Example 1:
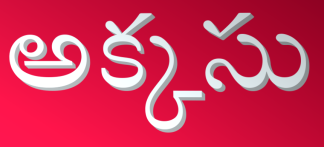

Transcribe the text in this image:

అక్కసు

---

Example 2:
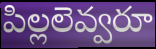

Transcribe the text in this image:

పిల్లలెవ్వరూ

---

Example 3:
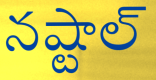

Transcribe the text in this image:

నష్టాల్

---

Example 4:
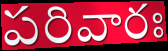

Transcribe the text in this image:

పరివారః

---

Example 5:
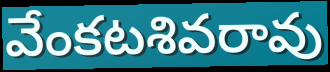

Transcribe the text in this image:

వేంకటశివరావు